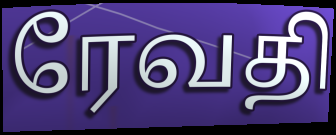
ரேவதி